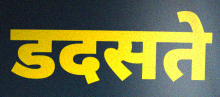
डदसते